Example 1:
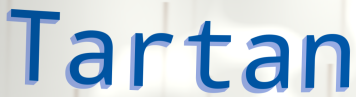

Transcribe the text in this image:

Tartan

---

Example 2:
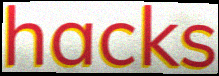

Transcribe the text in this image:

hacks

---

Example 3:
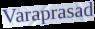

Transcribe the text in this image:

Varaprasad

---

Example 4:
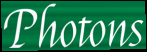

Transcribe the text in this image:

Photons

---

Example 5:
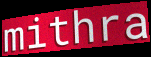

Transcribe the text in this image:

mithra